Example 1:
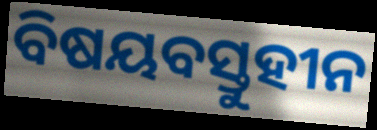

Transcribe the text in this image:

ବିଷୟବସ୍ତୁହୀନ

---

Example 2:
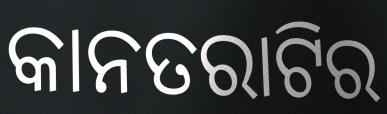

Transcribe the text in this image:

କାନତରାଟିର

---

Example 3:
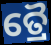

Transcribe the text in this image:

ତ୍ରୈ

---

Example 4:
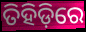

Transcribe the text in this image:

ତିହିଡ଼ିରେ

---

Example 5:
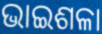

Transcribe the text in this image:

ଭାଇଶଳା